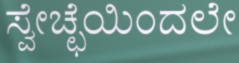
ಸ್ವೇಚ್ಛೆಯಿಂದಲೇ